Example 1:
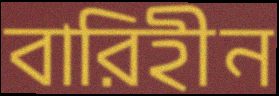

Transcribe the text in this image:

বারিহীন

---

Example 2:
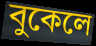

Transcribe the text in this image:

বুকেলে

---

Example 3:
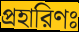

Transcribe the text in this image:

প্রহারিণঃ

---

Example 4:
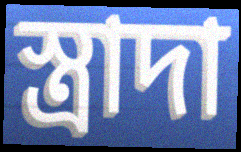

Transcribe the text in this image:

স্ত্রাদা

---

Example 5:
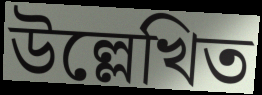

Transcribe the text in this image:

উল্লেখিত